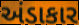
અંડાકાર